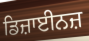
ਡਿਜ਼ਾਈਨਜ਼